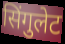
सिंगुलेट